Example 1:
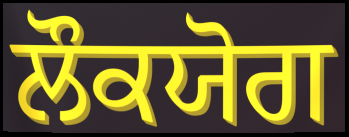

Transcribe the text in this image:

ਲੌਕਯੋਗ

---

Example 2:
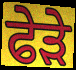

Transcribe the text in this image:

ਫੇੜੇ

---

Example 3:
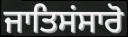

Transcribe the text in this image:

ਜਾਤਿਸਂਸਾਰੋ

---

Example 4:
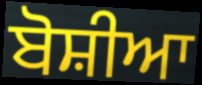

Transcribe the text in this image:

ਬੋਸ਼ੀਆ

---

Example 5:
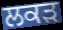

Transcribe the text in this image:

ਲਕੜ